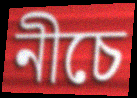
নীচে